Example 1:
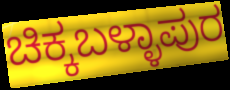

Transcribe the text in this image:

ಚಿಕ್ಕಬಳ್ಳಾಪುರ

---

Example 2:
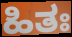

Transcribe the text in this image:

ಹಿತಃ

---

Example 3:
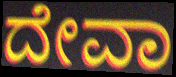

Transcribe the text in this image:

ದೇವಾ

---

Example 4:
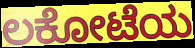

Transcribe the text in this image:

ಲಕೋಟೆಯ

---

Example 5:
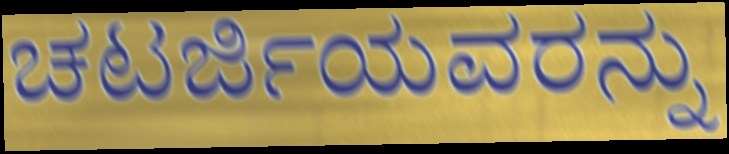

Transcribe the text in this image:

ಚಟರ್ಜಿಯವರನ್ನು